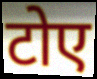
टोए